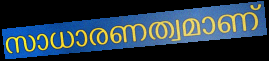
സാധാരണത്വമാണ്